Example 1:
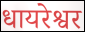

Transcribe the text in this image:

धायरेश्वर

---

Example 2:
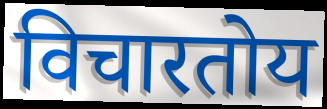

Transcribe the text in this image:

विचारतोय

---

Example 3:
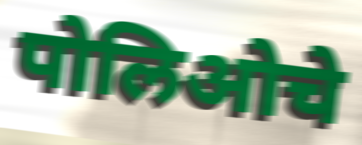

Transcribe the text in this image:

पोलिओचे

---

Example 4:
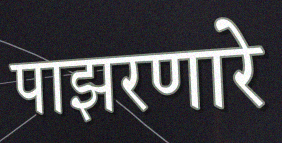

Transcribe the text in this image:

पाझरणारे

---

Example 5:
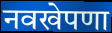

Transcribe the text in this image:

नवखेपणा